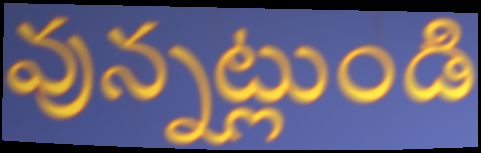
వున్నట్లుండి